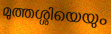
മുത്തശ്ശിയെയും